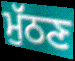
ਮੁੱਠਣ